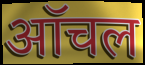
ऑचल